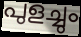
പുളച്ചും